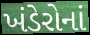
ખંડેરોનાં